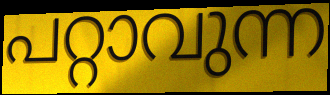
പറ്റാവുന്ന